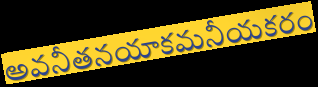
అవనీతనయాకమనీయకరం